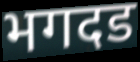
भगदड